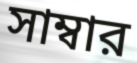
সাম্বার